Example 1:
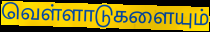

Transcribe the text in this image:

வெள்ளாடுகளையும்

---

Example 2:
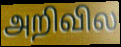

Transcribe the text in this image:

அறிவில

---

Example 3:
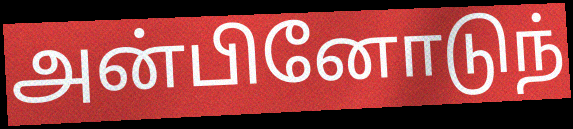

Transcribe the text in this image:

அன்பினோடுந்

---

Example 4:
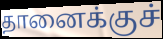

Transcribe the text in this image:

தானைக்குச்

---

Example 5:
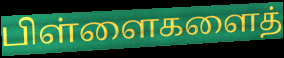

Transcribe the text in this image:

பிள்ளைகளைத்